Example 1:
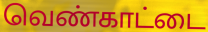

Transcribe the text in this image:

வெண்காட்டை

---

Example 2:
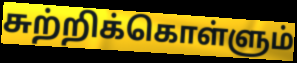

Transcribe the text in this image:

சுற்றிக்கொள்ளும்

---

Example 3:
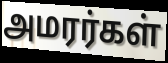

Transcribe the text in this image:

அமரர்கள்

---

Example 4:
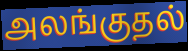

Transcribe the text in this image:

அலங்குதல்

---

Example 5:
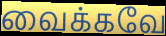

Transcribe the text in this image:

வைக்கவே